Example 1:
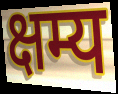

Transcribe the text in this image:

क्षम्य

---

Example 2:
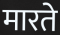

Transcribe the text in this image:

मारते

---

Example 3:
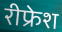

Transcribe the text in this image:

रीफ्रेश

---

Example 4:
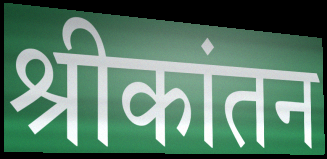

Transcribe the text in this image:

श्रीकांतन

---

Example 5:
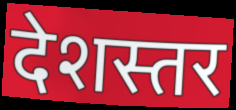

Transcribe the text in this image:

देशस्तर